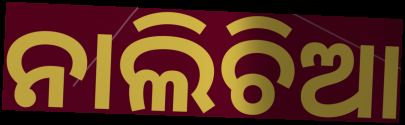
ନାଲିଚିଆ